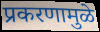
प्रकरणामुळे